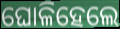
ଘୋଳିହେଲେ